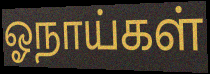
ஓநாய்கள்